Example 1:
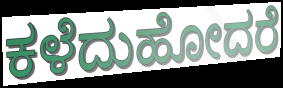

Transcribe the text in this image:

ಕಳೆದುಹೋದರೆ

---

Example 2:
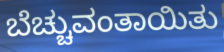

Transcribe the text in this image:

ಬೆಚ್ಚುವಂತಾಯಿತು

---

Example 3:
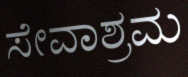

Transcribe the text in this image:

ಸೇವಾಶ್ರಮ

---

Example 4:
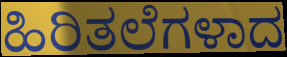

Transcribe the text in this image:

ಹಿರಿತಲೆಗಳಾದ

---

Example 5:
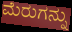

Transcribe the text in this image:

ಮೆರುಗನ್ನು